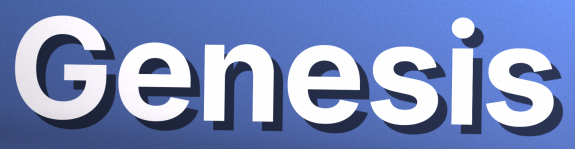
Genesis